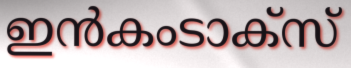
ഇൻകംടാക്സ്